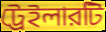
ট্রেইলারটি